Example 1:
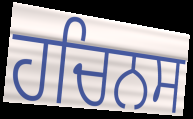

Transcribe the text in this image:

ਹਚਿਨਸ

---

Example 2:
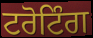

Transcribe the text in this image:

ਟਰੋਟਿੰਗ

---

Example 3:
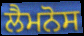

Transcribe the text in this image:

ਲੈਮਨੋਸ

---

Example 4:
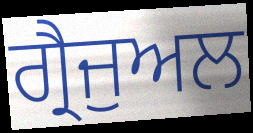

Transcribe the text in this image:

ਗ੍ਰੈਜੁਅਲ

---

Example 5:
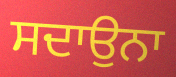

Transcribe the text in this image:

ਸਦਾਉਨਾ